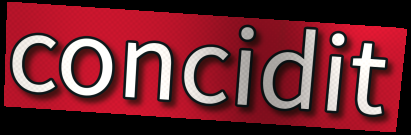
concidit